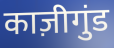
काज़ीगुंड